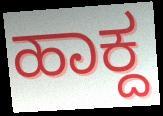
ಹಾಕ್ದ